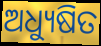
ଅଧ୍ୟୁଷିତ